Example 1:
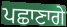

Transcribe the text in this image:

ਪਛਾਣਾਗੇ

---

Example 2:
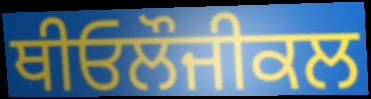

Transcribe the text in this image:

ਥੀਓਲੌਜੀਕਲ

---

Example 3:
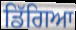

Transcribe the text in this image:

ਡਿੱਗਿਆ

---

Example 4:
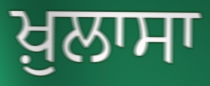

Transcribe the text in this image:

ਖ਼ੁਲਾਸਾ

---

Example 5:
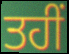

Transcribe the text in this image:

ਤਹੀਂ